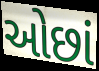
ઓછાં